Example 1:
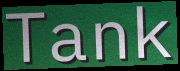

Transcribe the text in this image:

Tank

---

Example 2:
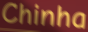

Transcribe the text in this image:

Chinha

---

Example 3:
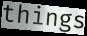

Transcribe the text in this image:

things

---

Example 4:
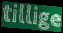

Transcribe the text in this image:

tillige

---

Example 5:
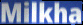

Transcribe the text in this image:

Milkha